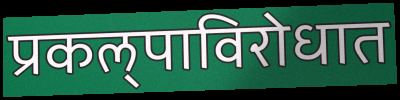
प्रकल्पाविरोधात